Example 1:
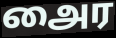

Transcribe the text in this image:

அைர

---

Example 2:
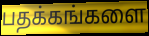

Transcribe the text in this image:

பதக்கங்களை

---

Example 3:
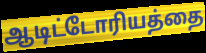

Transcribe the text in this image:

ஆடிட்டோரியத்தை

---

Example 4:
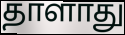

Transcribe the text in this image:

தாளாது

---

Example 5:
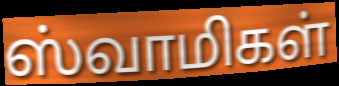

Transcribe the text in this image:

ஸ்வாமிகள்